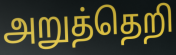
அறுத்தெறி